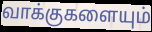
வாக்குகளையும்